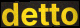
detto